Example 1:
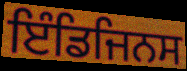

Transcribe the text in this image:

ਇੰਡਿਜਿਨਸ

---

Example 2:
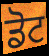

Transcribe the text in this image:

ਡੋਟ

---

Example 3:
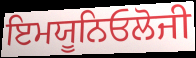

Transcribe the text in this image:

ਇਮਯੂਨਿਓਲੋਜੀ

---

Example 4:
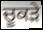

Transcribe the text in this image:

ਚੂਕੜੇ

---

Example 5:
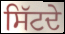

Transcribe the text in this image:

ਸਿੱਟਦੇ